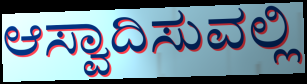
ಆಸ್ವಾದಿಸುವಲ್ಲಿ